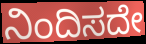
ನಿಂದಿಸದೇ